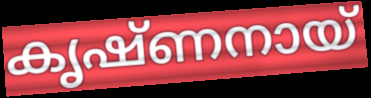
കൃഷ്ണനായ്